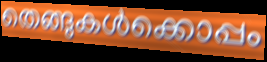
തെങ്ങുകൾക്കൊപ്പം